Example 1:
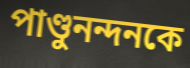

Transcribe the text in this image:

পাণ্ডুনন্দনকে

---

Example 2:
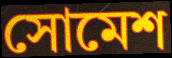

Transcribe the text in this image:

সোমেশ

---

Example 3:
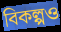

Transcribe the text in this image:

বিকল্পও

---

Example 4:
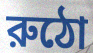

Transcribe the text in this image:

রুঠো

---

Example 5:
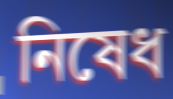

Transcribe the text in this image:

নিষেধ